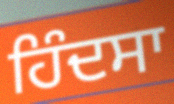
ਹਿੰਦਸਾ